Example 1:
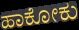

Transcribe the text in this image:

ಹಾಕೋಕು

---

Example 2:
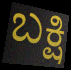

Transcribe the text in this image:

ಬಕ್ಷಿ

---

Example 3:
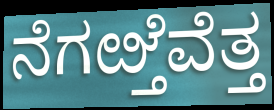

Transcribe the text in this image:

ನೆಗೞ್ತೆವೆತ್ತ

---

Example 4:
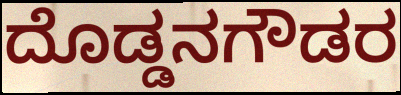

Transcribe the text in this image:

ದೊಡ್ಡನಗೌಡರ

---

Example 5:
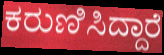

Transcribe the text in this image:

ಕರುಣಿಸಿದ್ದಾರೆ